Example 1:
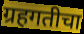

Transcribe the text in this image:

ग्रहगतीचा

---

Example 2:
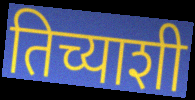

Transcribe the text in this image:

तिच्याशी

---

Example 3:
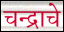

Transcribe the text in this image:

चन्द्राचे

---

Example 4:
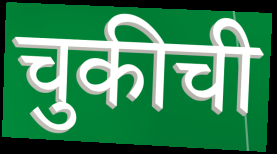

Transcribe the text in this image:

चुकीची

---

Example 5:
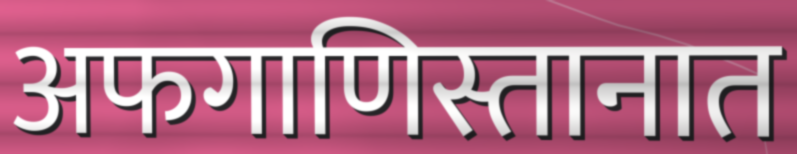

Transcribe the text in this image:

अफगाणिस्तानात